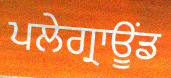
ਪਲੇਗ੍ਰਾਊਂਡ